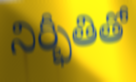
నిర్భీతితో